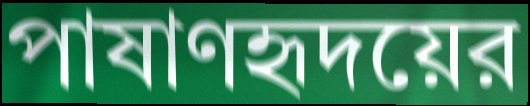
পাষাণহৃদয়ের